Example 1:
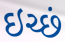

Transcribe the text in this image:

ઇચ્છં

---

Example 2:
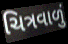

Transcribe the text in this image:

ચિત્રવાળું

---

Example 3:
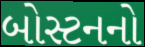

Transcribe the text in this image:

બોસ્ટનનો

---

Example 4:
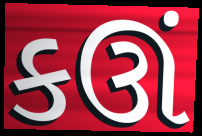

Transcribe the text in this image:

કઊં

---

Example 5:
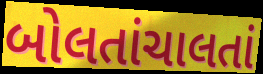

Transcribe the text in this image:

બોલતાંચાલતાં